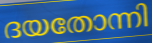
ദയതോന്നി